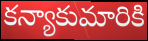
కన్యాకుమారికి